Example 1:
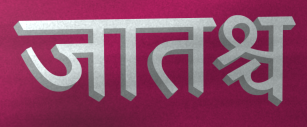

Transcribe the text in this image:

जातश्च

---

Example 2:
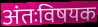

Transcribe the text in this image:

अंतःविषयक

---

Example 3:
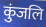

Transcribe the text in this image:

कुंजलि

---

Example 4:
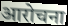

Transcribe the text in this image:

आरोचना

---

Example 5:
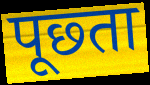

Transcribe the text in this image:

पूछ्ता